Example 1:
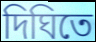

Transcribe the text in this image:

দিঘিতে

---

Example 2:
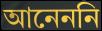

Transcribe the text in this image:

আনেননি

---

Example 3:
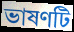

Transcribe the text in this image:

ভাষণটি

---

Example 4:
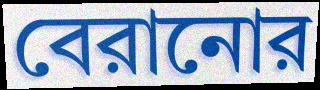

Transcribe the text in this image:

বেরানোর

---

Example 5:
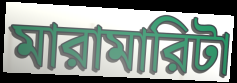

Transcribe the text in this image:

মারামারিটা